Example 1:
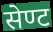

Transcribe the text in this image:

सेण्ट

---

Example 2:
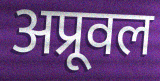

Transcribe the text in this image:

अप्रूवल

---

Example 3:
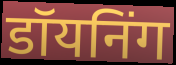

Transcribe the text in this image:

डॉयनिंग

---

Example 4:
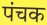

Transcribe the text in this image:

पंचक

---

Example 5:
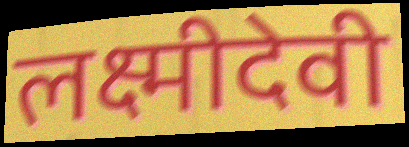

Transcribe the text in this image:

लक्ष्मीदेवी